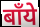
बाँये